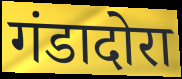
गंडादोरा